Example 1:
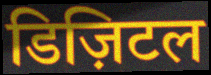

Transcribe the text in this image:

डिज़िटल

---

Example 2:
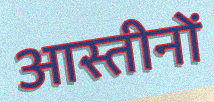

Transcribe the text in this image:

आस्तीनों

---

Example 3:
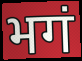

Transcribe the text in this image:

भगं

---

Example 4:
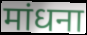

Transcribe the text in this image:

मांधना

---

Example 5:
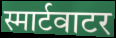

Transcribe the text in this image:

स्मार्टवाटर